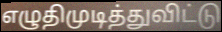
எழுதிமுடித்துவிட்டு